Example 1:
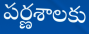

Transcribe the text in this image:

పర్ణశాలకు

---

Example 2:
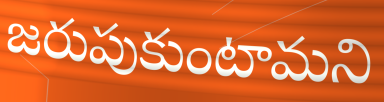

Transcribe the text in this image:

జరుపుకుంటామని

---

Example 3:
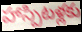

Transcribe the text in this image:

హాస్పిటళ్లకు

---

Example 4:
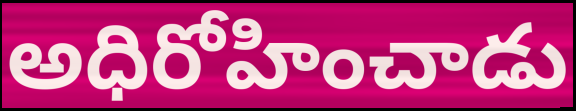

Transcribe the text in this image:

అధిరోహించాడు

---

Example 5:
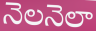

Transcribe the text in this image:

నెలనెలా